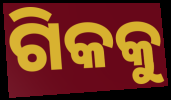
ଗିକକୁ